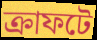
ক্রাফটে